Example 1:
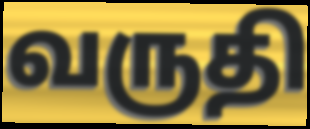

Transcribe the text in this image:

வருதி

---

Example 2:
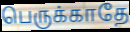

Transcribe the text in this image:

பெருக்காதே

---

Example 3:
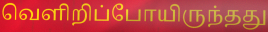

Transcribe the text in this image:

வெளிறிப்போயிருந்தது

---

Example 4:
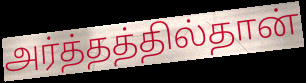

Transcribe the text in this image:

அர்த்தத்தில்தான்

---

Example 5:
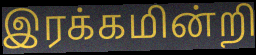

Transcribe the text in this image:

இரக்கமின்றி